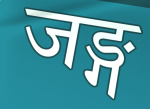
जङ्ग